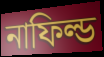
নাফিল্ড